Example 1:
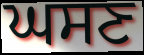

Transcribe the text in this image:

ਘਸਣ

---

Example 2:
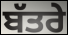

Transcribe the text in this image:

ਬੱਤਰੇ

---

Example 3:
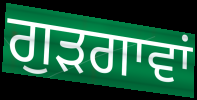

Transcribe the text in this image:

ਗੁੜਗਾਵਾਂ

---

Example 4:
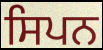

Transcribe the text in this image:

ਸਿਪਨ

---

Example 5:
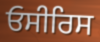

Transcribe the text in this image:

ਓਸੀਰਿਸ